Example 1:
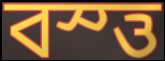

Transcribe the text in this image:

বস্ত্ত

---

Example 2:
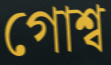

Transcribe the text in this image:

গোশ্ব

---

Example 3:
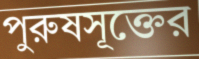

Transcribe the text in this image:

পুরুষসূক্তের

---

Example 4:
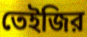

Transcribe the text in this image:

তেইজির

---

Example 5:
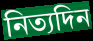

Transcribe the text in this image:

নিত্যদিন